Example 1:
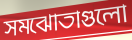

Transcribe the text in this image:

সমঝোতাগুলো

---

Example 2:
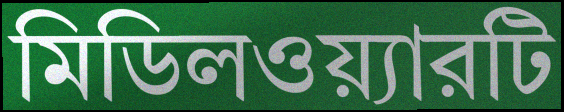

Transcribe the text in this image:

মিডিলওয়্যারটি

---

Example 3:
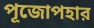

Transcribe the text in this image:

পূজোপহার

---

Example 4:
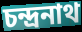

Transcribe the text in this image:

চন্দ্রনাথ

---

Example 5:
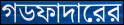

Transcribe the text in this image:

গডফাদারের